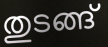
തുടങ്ങ്